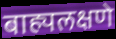
बाह्यलक्षणे